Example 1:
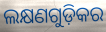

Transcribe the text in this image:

ଲକ୍ଷଣଗୁଡ଼ିକର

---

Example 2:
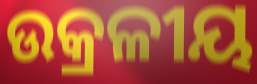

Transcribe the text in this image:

ଉକ୍ରଳୀୟ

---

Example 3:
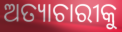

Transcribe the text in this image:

ଅତ୍ୟାଚାରୀକୁ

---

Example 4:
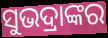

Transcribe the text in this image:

ସୁଭଦ୍ରାଙ୍କର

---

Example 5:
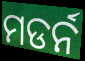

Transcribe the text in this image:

ମଡର୍ନ